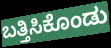
ಬತ್ತಿಸಿಕೊಂಡು